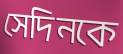
সেদিনকে